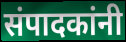
संपादकांनी